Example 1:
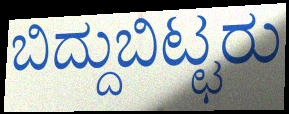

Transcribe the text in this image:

ಬಿದ್ದುಬಿಟ್ಟರು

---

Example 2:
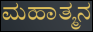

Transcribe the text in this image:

ಮಹಾತ್ಮನ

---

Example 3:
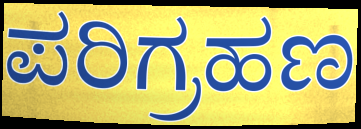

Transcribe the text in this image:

ಪರಿಗ್ರಹಣ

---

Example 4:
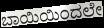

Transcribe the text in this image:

ಬಾಯಿಯಿಂದಲೇ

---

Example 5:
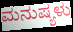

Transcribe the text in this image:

ಮನುಷ್ಯಳು